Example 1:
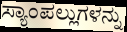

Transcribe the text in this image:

ಸ್ಯಾಂಪಲ್ಲುಗಳನ್ನು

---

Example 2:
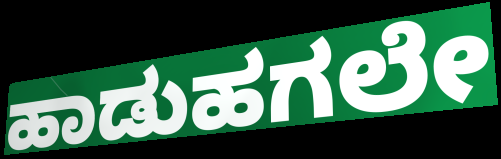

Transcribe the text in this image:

ಹಾಡುಹಗಲೇ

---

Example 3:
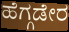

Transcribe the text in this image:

ಹೆಗ್ಗಡೇರ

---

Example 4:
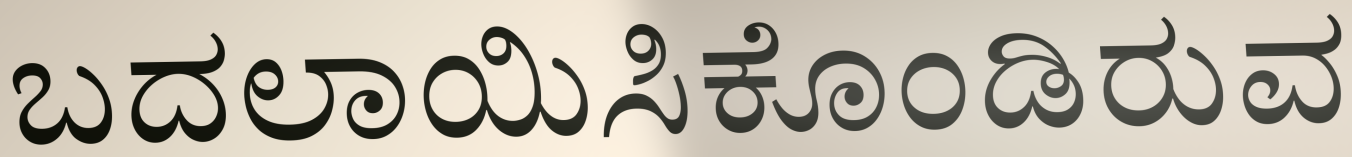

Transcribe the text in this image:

ಬದಲಾಯಿಸಿಕೊಂಡಿರುವ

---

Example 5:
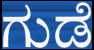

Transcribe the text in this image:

ಗುಡೆ